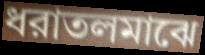
ধরাতলমাঝে